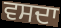
ਵਸਦਾ